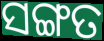
ସଙ୍ଗତ